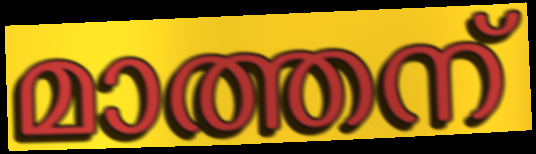
മാത്തന്